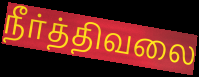
நீர்த்திவலை